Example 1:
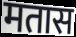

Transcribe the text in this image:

मतास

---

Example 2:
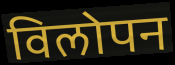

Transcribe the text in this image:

विलोपन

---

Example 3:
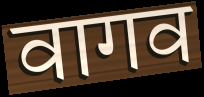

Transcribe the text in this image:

वागव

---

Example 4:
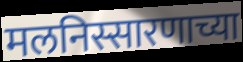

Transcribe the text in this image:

मलनिस्सारणाच्या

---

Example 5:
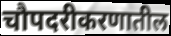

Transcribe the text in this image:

चौपदरीकरणातील